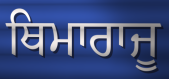
ਥਿਮਾਰਾਜੂ